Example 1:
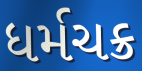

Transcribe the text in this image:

ધર્મચક્ર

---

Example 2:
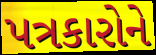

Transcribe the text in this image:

પત્રકારોને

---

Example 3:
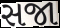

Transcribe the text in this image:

સજા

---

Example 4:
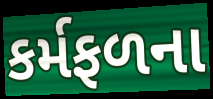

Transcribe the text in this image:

કર્મફળના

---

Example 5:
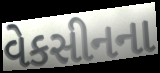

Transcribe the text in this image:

વેકસીનના